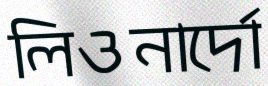
লিওনার্দো